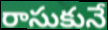
రాసుకునే